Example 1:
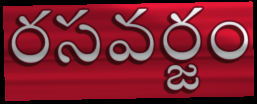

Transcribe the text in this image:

రసవర్జం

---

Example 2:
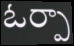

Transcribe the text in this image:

ఓర్పా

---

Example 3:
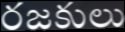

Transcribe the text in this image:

రజకులు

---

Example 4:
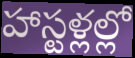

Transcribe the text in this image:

హాస్టళ్లల్లో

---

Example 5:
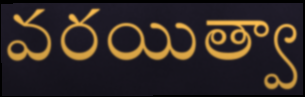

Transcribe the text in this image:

వరయిత్వా